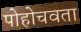
पोहोचवता